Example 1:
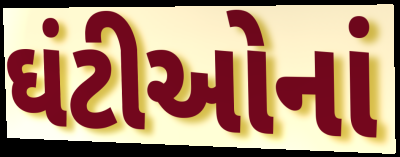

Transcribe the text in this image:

ઘંટીઓનાં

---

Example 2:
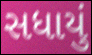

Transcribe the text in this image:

સધાયું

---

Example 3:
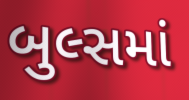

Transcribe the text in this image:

બુલ્સમાં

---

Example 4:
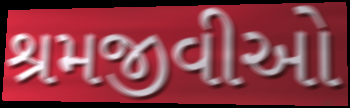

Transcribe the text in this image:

શ્રમજીવીઓ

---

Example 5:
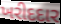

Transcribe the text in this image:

ખરીદદાર